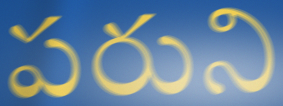
పరుని